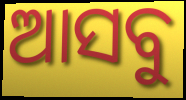
ଆସବୁ